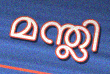
മന്ത്ലി